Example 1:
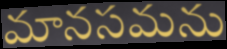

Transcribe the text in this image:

మానసమను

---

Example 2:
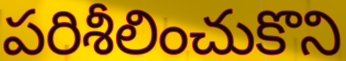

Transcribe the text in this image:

పరిశీలించుకొని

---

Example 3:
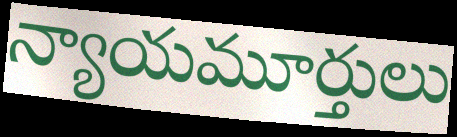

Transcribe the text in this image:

న్యాయమూర్తులు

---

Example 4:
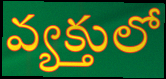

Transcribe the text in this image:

వ్యక్తులో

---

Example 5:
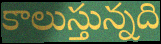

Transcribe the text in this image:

కాలుస్తున్నది